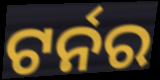
ଟର୍ନର